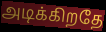
அடிக்கிறதே